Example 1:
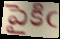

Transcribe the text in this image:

పైకిఁ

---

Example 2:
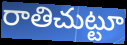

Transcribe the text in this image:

రాతిచుట్టూ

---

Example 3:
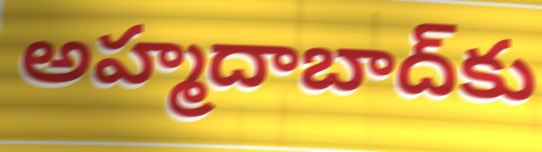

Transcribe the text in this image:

అహ్మదాబాద్‌కు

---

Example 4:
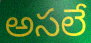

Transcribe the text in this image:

అసలే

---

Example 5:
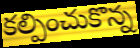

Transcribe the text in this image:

కల్పించుకొన్న